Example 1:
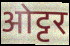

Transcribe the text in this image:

ओट्टर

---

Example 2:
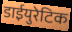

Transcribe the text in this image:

डाईयुरेटिक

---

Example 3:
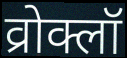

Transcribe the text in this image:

व्रोक्लॉ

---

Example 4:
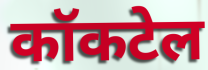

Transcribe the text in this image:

कॉकटेल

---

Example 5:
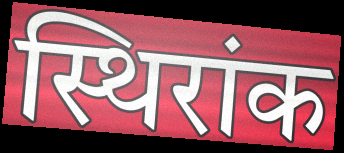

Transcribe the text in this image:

स्थिरांक